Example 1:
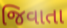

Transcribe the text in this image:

જિવાતા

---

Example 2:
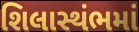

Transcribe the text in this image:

શિલાસ્થંભમાં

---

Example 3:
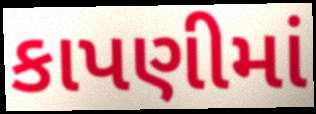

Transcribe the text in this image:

કાપણીમાં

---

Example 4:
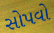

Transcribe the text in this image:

સોપવો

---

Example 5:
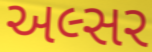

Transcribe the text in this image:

અલ્સર